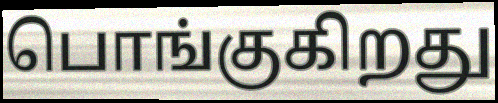
பொங்குகிறது